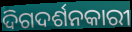
ଦିଗଦର୍ଶନକାରୀ